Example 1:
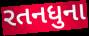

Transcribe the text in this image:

રતનધુના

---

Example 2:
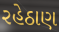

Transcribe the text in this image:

રહેઠાણ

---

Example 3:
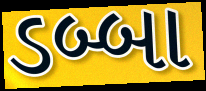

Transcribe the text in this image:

ડબ્બા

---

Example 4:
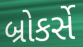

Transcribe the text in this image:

બ્રોકર્સે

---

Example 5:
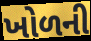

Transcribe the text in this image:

ખોળની